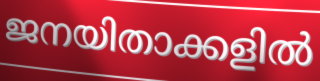
ജനയിതാക്കളിൽ